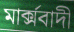
মার্ক্সবাদী